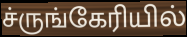
ச்ருங்கேரியில்